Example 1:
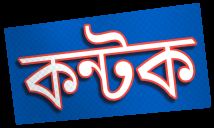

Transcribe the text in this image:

কন্টক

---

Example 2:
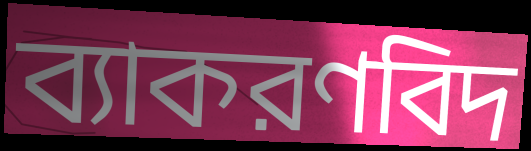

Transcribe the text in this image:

ব্যাকরণবিদ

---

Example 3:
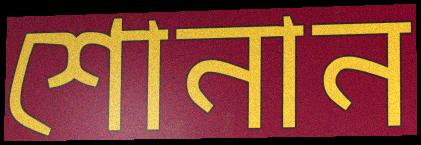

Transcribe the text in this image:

শোনান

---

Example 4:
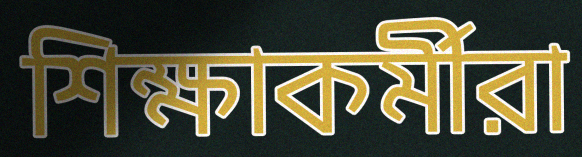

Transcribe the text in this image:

শিক্ষাকর্মীরা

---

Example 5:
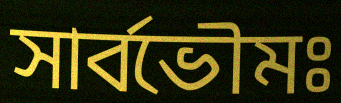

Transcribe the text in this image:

সার্বভৌমঃ